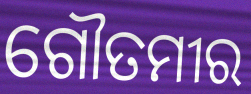
ଗୌତମୀର